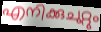
എനിക്കുചുറ്റും